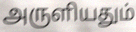
அருளியதும்